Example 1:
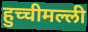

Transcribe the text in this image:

हुच्चीमल्ली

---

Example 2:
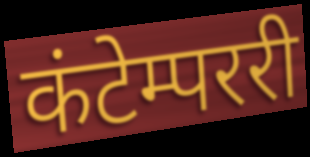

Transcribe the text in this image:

कंटेम्पररी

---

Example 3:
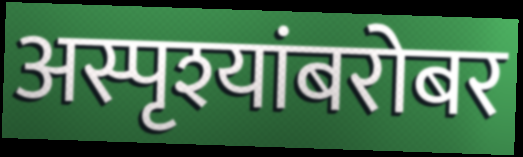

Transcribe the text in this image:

अस्पृश्यांबरोबर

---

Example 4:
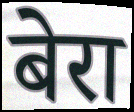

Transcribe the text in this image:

बेरा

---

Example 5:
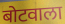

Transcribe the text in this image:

बोटवाला